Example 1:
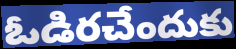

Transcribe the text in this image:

ఓడిరచేందుకు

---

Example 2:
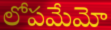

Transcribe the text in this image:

లోపమేమో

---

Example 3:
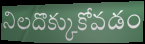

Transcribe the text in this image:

నిలదొక్కుకోవడం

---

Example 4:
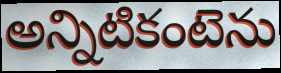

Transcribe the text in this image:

అన్నిటికంటెను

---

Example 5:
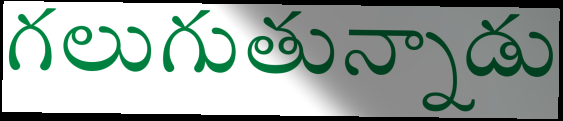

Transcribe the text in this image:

గలుగుతున్నాడు